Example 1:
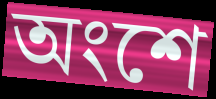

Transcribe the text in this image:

অংশে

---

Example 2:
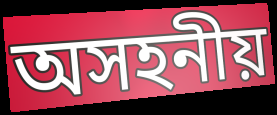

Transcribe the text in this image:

অসহনীয়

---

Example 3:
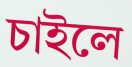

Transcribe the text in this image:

চাইলে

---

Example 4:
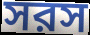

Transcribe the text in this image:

সরস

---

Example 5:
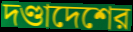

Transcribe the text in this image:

দণ্ডাদেশের